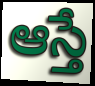
ఆస్తే